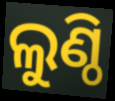
ଲୁଣ୍ଠି